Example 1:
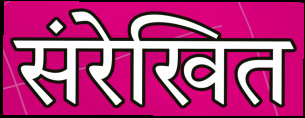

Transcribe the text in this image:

संरेखित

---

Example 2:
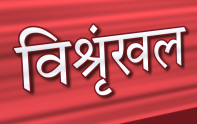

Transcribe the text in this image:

विश्रृंखल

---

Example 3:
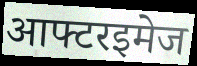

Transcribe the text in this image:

आफ्टरइमेज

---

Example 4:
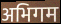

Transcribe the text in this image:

अभिगम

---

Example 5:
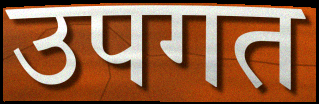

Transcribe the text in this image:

उपगत